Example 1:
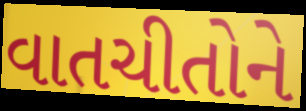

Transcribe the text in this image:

વાતચીતોને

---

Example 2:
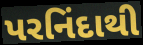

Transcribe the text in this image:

પરનિંદાથી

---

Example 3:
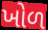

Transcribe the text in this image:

ખોળ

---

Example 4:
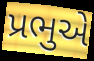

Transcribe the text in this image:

પ્રભુએ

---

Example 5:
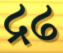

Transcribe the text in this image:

દ્રઢ